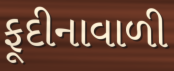
ફૂદીનાવાળી